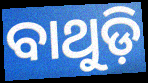
ବାଥୁଡ଼ି